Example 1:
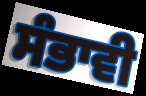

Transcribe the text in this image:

ਸੰਭਾਵੀ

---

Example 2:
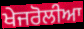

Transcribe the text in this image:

ਖੇਜਰੋਲੀਆ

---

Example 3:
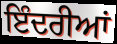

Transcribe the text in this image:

ਇੰਦਰੀਆਂ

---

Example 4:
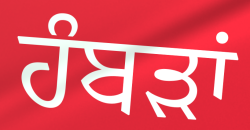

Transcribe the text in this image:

ਹੰਬੜਾਂ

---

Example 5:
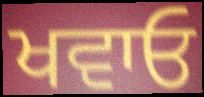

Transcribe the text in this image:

ਖਵਾਓ